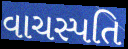
વાચસ્પતિ